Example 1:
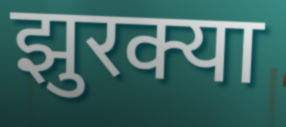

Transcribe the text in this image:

झुरक्या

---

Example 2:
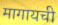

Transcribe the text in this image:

मागायची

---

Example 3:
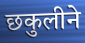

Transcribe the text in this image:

छकुलीने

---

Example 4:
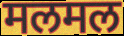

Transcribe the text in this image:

मलमल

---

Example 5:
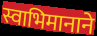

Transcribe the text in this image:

स्वाभिमानाने